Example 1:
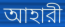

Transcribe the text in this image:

আহারী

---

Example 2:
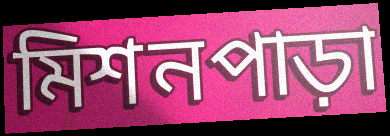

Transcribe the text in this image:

মিশনপাড়া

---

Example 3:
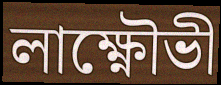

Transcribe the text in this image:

লাক্ষ্ণৌভী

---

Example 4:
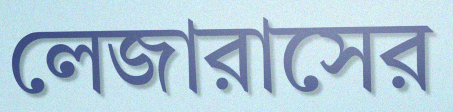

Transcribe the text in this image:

লেজারাসের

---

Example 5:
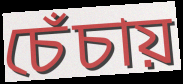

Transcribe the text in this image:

চেঁচায়